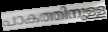
പാകത്തിനുള്ള